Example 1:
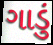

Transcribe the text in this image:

ગાડું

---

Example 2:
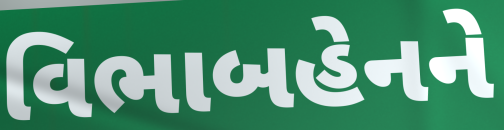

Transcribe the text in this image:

વિભાબહેનને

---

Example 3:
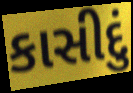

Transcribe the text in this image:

કાસીદું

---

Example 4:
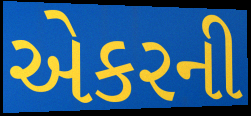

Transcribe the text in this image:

એકરની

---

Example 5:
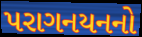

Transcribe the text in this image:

પરાગનયનનો